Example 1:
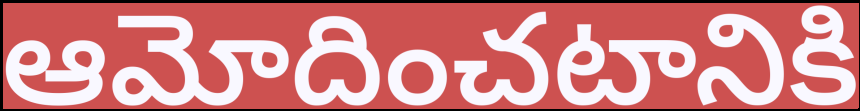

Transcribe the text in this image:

ఆమోదించటానికి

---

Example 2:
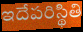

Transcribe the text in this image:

ఇదేపరిస్థితి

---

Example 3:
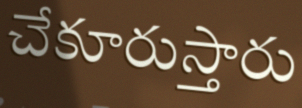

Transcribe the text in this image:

చేకూరుస్తారు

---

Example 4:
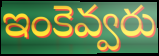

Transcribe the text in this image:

ఇంకెవ్వరు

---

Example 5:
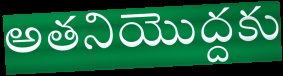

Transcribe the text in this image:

అతనియొద్దకు